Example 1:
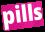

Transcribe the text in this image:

pills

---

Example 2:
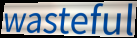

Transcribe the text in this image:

wasteful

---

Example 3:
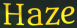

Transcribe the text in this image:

Haze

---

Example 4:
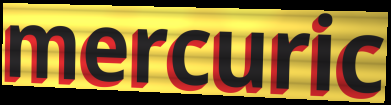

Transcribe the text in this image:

mercuric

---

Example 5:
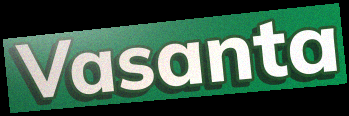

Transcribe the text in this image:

Vasanta